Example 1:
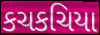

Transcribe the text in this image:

કચકચિયા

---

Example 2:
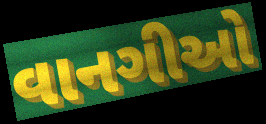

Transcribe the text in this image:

વાનગીઓ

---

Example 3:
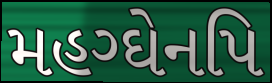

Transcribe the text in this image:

મહગ્ઘેનપિ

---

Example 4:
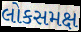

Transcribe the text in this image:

લોકસમક્ષ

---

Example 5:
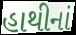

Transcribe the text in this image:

હાથીનાં